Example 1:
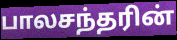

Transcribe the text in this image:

பாலசந்தரின்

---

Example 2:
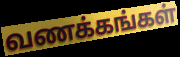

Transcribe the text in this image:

வணக்கங்கள்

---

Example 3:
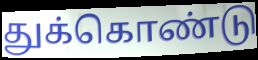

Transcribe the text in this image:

துக்கொண்டு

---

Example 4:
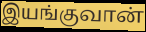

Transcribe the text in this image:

இயங்குவான்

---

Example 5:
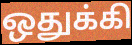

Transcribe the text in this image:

ஒதுக்கி